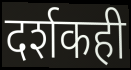
दर्शकही